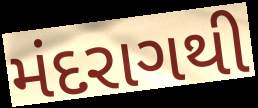
મંદરાગથી